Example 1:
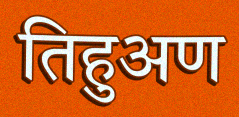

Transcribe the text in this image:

तिहुअण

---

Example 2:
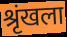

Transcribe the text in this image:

श्रृंखला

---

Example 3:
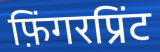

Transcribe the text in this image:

फ़िंगरप्रिंट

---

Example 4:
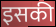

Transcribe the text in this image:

इसकी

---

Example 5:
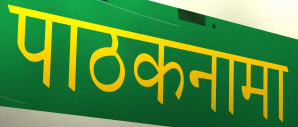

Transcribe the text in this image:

पाठकनामा